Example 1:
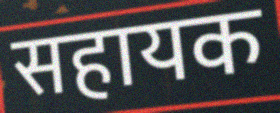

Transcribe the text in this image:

सहायक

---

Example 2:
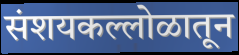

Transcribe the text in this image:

संशयकल्लोळातून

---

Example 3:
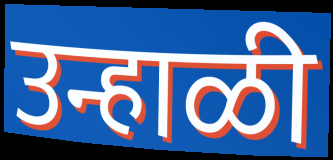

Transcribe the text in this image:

उन्हाळी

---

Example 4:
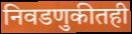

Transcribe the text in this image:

निवडणुकीतही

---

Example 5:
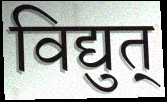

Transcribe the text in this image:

विद्युत्